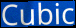
Cubic